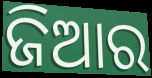
ଜିଆର